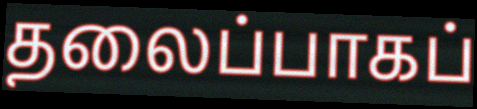
தலைப்பாகப்